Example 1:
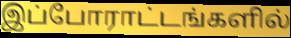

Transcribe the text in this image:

இப்போராட்டங்களில்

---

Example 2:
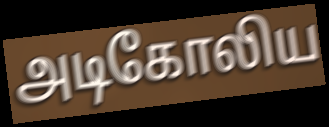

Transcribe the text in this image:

அடிகோலிய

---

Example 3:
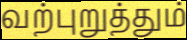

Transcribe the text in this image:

வற்புறுத்தும்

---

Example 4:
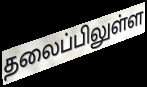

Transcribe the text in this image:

தலைப்பிலுள்ள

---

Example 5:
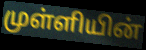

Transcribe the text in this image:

முள்ளியின்